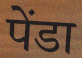
पेंडा